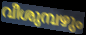
വീശുമ്പഴും